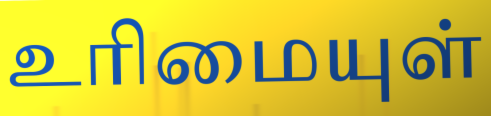
உரிமையுள்